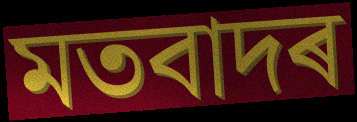
মতবাদৰ